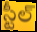
స్టీల్